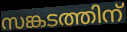
സങ്കടത്തിന്